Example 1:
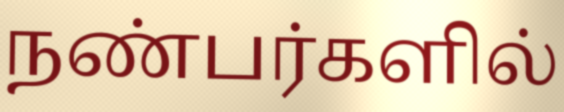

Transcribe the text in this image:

நண்பர்களில்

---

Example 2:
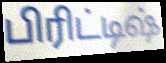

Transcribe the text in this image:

பிரிட்டிஷ்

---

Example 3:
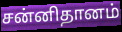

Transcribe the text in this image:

சன்னிதானம்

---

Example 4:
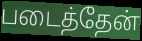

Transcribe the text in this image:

படைத்தேன்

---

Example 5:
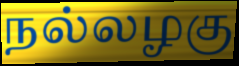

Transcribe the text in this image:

நல்லழகு